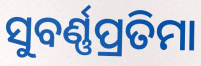
ସୁବର୍ଣ୍ଣପ୍ରତିମା